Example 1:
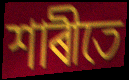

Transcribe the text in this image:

শাৰীতে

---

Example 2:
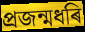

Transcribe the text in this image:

প্ৰজন্মধৰি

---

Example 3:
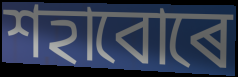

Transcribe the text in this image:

শহাবোৰে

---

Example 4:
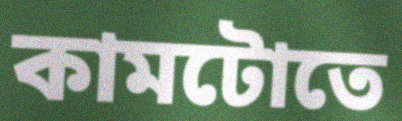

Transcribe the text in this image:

কামটোতে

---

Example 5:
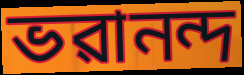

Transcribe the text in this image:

ভৱানন্দ